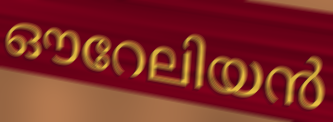
ഔറേലിയൻ